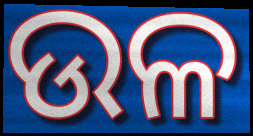
ଉଳ